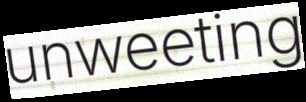
unweeting